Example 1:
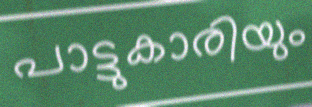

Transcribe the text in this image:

പാട്ടുകാരിയും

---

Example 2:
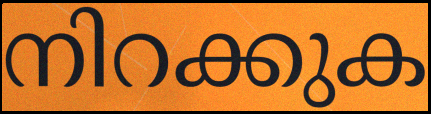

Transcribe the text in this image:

നിറക്കുക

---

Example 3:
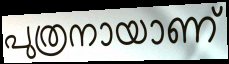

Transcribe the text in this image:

പുത്രനായാണ്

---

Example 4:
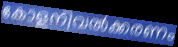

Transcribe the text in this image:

കോളനിവൽക്കരണം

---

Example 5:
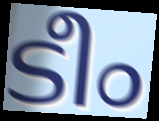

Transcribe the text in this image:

ടീം